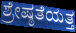
ಶ್ರೇಷ್ಠತೆಯತ್ತ